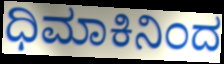
ಧಿಮಾಕಿನಿಂದ